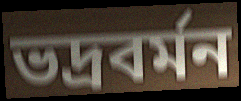
ভদ্রবর্মন